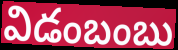
విడంబంబు